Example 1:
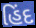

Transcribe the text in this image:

હિંદ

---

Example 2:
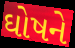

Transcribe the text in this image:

ઘોષને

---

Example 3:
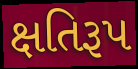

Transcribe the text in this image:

ક્ષતિરૂપ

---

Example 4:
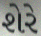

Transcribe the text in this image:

શેરે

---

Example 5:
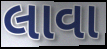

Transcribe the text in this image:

લાવા